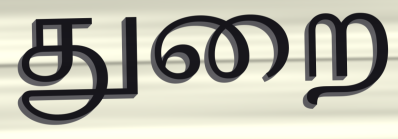
துறை